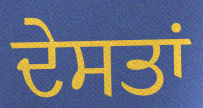
ਦੇਸਤਾਂ